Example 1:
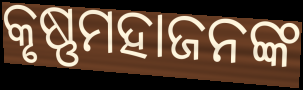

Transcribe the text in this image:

କୃଷ୍ଣମହାଜନଙ୍କ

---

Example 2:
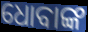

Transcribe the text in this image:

ଧୋବାଙ୍କ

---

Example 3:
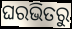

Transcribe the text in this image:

ଘରଭିତରୁ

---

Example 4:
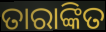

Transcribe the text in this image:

ତାରାଙ୍କିତ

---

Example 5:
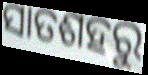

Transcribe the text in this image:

ସାତଶହରୁ